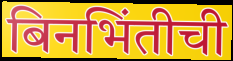
बिनभिंतीची